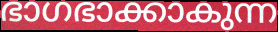
ഭാഗഭാക്കാകുന്ന